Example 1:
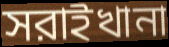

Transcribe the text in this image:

সরাইখানা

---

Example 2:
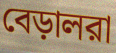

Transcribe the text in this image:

বেড়ালরা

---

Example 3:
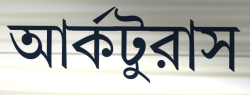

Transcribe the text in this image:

আর্কটুরাস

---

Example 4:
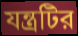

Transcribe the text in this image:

যন্ত্রটির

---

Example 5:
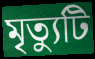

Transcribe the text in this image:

মৃত্যুটি